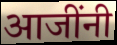
आजींनी